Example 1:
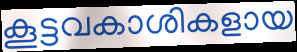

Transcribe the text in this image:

കൂട്ടവകാശികളായ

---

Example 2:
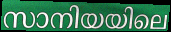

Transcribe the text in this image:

സാനിയയിലെ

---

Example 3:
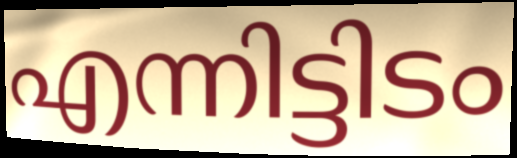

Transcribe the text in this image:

എന്നിട്ടിടം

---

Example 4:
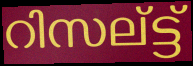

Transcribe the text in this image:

റിസല്ട്ട്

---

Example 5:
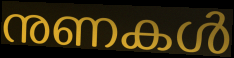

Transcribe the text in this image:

നുണകൾ